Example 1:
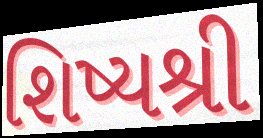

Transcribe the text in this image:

શિષ્યશ્રી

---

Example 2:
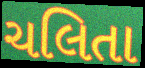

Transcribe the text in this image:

ચલિતા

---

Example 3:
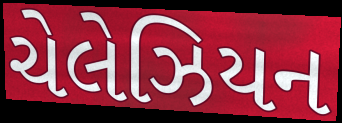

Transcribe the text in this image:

ચેલેઝિયન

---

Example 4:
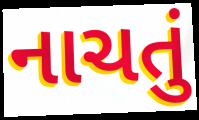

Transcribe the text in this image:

નાચતું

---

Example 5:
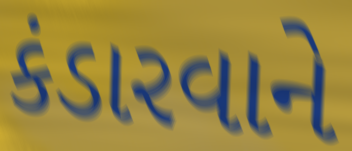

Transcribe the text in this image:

કંડારવાને